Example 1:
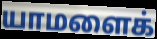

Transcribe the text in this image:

யாமளைக்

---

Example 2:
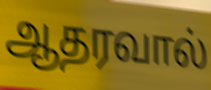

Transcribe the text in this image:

ஆதரவால்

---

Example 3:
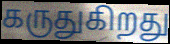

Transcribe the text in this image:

கருதுகிறது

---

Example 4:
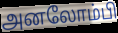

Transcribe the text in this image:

அனலோம்பி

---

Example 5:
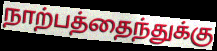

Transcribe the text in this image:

நாற்பத்தைந்துக்கு